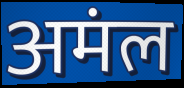
अमंल